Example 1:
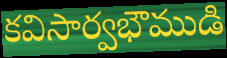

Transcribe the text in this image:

కవిసార్వభౌముడి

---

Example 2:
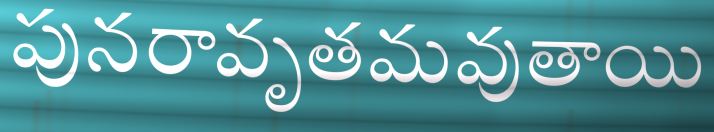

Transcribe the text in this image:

పునరావృతమవుతాయి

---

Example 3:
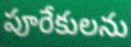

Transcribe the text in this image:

పూరేకులను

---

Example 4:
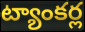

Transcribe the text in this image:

ట్యాంకర్ల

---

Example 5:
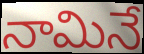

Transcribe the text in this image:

నామినే